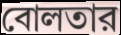
বোলতার